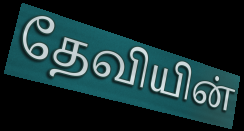
தேவியின்